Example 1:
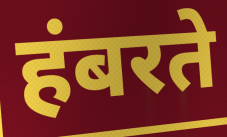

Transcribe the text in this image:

हंबरते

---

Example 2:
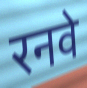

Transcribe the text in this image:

रनवे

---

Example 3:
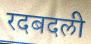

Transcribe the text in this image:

रदबदली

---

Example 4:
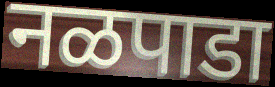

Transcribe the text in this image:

नळपाडा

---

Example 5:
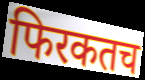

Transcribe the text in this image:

फिरकतच